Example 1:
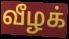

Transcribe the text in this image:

வீழக்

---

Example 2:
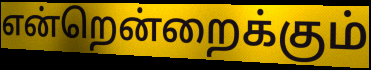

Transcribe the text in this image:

என்றென்றைக்கும்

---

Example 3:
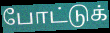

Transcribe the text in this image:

போட்டுக்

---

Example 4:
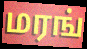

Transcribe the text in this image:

மரங்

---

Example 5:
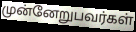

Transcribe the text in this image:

முன்னேறுபவர்கள்